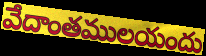
వేదాంతములయందు